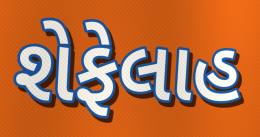
શેફેલાહ